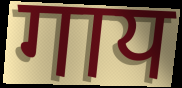
गाय